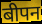
बीपन